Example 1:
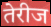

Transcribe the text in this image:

तेरीज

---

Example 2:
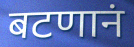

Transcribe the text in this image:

बटणानं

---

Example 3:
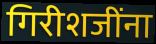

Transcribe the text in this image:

गिरीशजींना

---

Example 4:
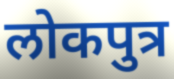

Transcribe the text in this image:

लोकपुत्र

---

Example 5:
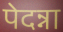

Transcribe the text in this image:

पेदन्ना